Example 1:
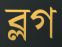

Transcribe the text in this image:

ব্লগ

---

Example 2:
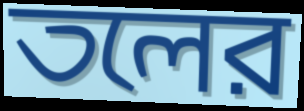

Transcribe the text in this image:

তলের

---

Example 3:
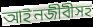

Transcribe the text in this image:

আইনজীবীসহ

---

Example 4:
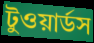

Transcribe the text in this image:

টুওয়ার্ডস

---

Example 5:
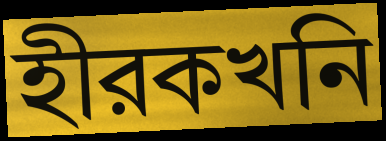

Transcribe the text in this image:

হীরকখনি